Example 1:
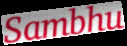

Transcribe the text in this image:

Sambhu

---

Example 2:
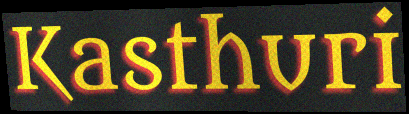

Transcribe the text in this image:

Kasthuri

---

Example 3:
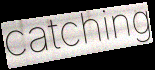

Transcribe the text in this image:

catching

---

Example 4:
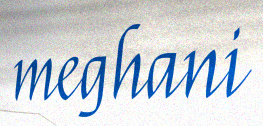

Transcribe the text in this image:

meghani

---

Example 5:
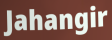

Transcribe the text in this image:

Jahangir